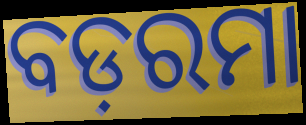
ବଡ଼ରମା